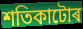
শতিকাটোৰ